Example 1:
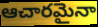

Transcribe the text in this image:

ఆచారమైనా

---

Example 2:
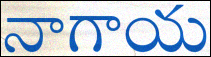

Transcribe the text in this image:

నాగాయ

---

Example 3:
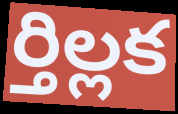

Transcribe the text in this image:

ర్తిల్లక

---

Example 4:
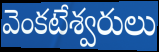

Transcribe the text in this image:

వెంకటేశ్వరులు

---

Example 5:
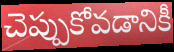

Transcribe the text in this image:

చెప్పుకోవడానికీ